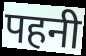
पहनी